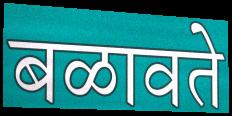
बळावते